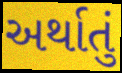
અર્થાતું